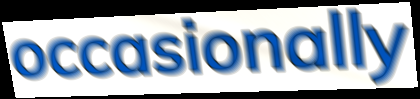
occasionally